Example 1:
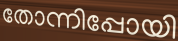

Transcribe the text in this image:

തോന്നിപ്പോയി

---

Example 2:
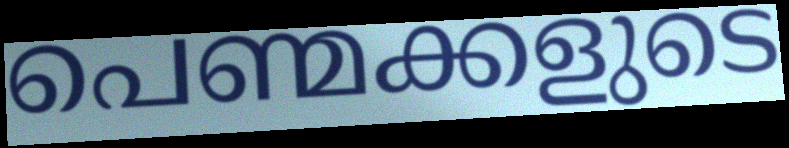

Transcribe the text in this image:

പെണ്മക്കളുടെ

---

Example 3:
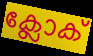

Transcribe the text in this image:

ക്ലോക്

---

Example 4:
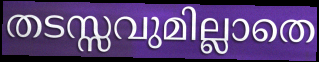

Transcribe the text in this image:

തടസ്സവുമില്ലാതെ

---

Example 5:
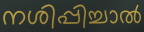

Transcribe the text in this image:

നശിപ്പിച്ചാൽ